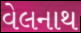
વેલનાથ